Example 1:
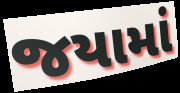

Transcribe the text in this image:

જયામાં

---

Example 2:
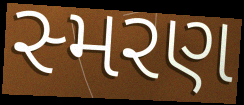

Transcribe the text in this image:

સ્મરણ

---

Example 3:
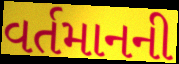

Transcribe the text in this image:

વર્તમાનની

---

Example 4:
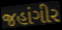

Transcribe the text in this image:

જહાંગીર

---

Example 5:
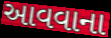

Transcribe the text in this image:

આવવાના